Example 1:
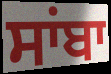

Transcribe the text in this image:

ਸਾਂਬਾ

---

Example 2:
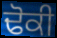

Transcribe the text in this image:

ਢੋਕੀ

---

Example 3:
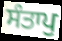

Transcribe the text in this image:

ਸੰਤਾਪੁ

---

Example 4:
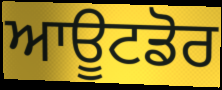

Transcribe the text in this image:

ਆਊਟਡੋਰ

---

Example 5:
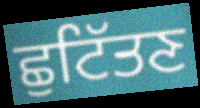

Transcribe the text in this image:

ਛੁਟਿੱਤਣ